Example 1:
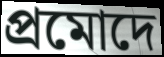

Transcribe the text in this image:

প্ৰমোদে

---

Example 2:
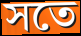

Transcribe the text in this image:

সতে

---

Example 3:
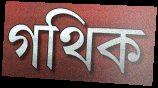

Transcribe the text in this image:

গথিক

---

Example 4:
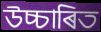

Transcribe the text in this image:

উচ্চাৰিত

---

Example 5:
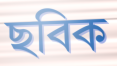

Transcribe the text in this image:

ছবিক